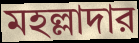
মহল্লাদার